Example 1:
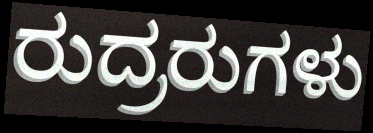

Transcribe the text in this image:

ರುದ್ರರುಗಳು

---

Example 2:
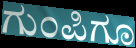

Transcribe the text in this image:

ಗುಂಪಿಗೂ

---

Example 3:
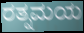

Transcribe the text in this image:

ರತ್ನಮಯ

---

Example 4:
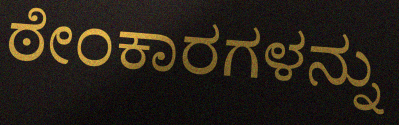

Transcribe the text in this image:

ಠೇಂಕಾರಗಳನ್ನು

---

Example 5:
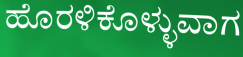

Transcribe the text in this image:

ಹೊರಳಿಕೊಳ್ಳುವಾಗ